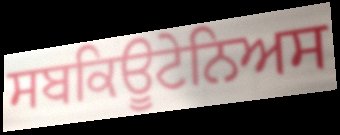
ਸਬਕਿਊਟੇਨਿਅਸ